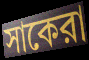
সাকেরা